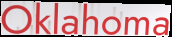
Oklahoma